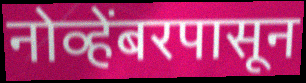
नोव्हेंबरपासून